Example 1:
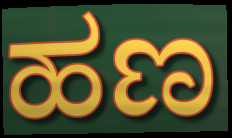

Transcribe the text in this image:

ಹಣ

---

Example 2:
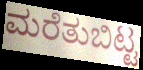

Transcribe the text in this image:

ಮರೆತುಬಿಟ್ಟ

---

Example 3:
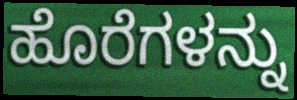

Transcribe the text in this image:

ಹೊರೆಗಳನ್ನು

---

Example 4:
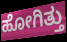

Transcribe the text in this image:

ಹೋಗಿತ್ತು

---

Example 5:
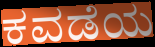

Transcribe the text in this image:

ಕವಡೆಯ